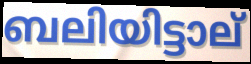
ബലിയിട്ടാല്